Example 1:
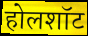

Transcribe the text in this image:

होलशॉट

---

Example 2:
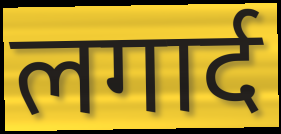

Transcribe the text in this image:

लगार्द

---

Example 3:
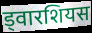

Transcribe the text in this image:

ड्वारशियस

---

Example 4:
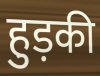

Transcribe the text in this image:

हुड़की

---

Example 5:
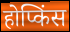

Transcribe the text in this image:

होप्किंस